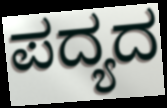
ಪದ್ಯದ